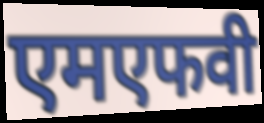
एमएफवी